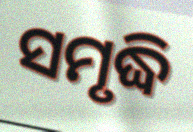
ସମୃଦ୍ଧି